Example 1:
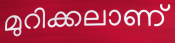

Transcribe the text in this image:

മുറിക്കലാണ്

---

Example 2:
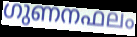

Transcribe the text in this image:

ഗുണനഫലം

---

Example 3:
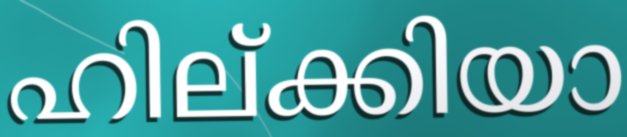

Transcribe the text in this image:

ഹില്ക്കിയാ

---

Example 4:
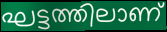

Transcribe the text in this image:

ഘട്ടത്തിലാണ്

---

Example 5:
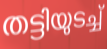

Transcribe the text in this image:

തട്ടിയുടച്ച്